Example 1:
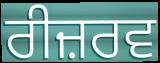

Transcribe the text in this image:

ਰੀਜ਼ਰਵ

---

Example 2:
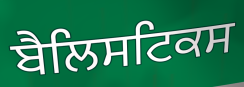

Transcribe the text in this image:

ਬੈਲਿਸਟਿਕਸ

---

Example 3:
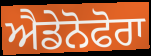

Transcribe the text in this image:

ਐਡੇਨੋਫੋਰਾ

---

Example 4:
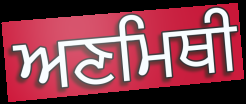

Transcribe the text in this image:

ਅਣਮਿਥੀ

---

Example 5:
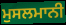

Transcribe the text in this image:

ਮੁਸਲਮਾਨੀ